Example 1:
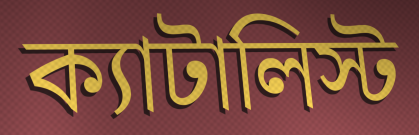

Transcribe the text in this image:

ক্যাটালিস্ট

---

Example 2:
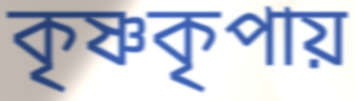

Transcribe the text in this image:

কৃষ্ণকৃপায়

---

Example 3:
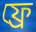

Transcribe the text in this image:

ফ্রে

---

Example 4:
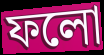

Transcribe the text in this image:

ফলো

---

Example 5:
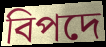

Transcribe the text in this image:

বিপদে